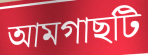
আমগাছটি